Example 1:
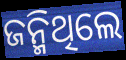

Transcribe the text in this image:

ଜନ୍ମିଥିଲେ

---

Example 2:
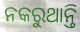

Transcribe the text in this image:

ନକରୁଥାନ୍ତି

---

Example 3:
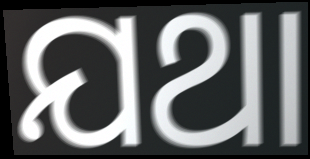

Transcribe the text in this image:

ଯଥା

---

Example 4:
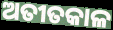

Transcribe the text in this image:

ଅତୀତକାଳ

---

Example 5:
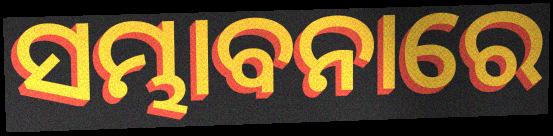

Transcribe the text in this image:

ସମ୍ଭାବନାରେ